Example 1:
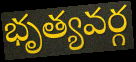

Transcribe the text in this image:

భృత్యవర్గ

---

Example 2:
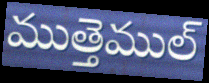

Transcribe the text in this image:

ముత్తెముల్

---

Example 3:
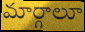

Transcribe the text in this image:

మార్గాలూ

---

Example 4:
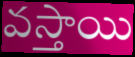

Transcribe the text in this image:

వస్తాయి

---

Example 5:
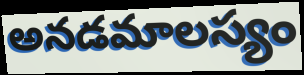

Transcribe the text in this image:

అనడమాలస్యం